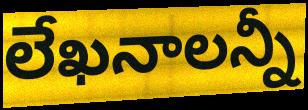
లేఖనాలన్నీ